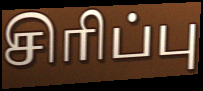
சிரிப்பு